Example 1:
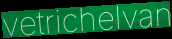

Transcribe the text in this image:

vetrichelvan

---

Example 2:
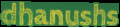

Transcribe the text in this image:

dhanushs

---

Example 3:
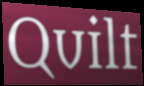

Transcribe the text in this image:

Quilt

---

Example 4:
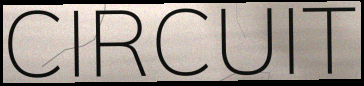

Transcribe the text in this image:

CIRCUIT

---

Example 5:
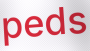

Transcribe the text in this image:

peds